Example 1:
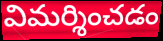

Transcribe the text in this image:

విమర్శించడం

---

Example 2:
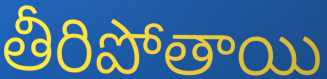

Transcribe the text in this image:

తీరిపోతాయి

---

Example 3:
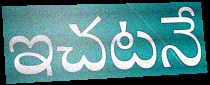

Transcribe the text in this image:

ఇచటనే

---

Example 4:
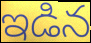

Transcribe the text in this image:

ఇడిన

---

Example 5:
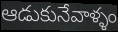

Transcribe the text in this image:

ఆడుకునేవాళ్ళం